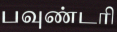
பவுண்டரி